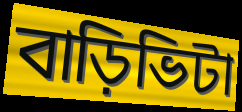
বাড়িভিটা